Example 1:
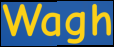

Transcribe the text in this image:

Wagh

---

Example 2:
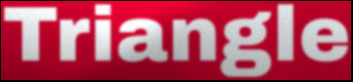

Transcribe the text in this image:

Triangle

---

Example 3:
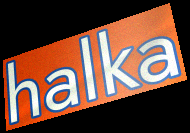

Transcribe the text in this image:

halka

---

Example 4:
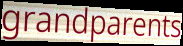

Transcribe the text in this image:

grandparents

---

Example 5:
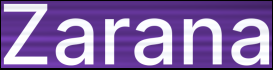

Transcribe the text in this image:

Zarana